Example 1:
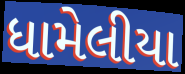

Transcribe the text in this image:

ધામેલીયા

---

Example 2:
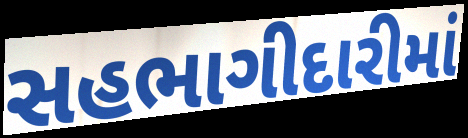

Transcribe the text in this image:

સહભાગીદારીમાં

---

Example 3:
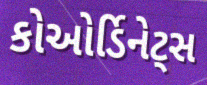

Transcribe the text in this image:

કોઓર્ડિનેટ્સ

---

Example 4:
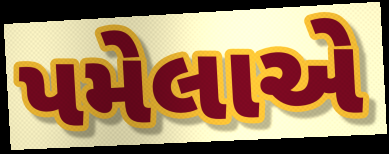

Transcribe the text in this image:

પમેલાએ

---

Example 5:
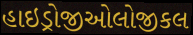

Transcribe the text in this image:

હાઇડ્રોજીઓલોજીકલ